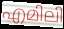
എമിലി